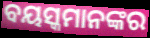
ବୟସ୍କମାନଙ୍କର